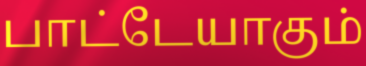
பாட்டேயாகும்